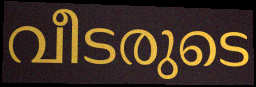
വീടരുടെ